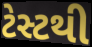
ટેસ્ટથી